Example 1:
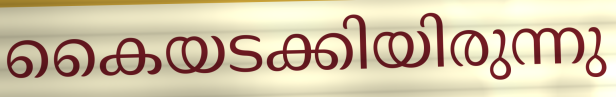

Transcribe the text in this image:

കൈയടക്കിയിരുന്നു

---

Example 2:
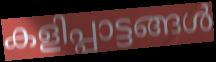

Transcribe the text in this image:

കളിപ്പാട്ടങ്ങൾ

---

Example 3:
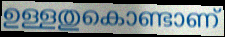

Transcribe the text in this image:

ഉള്ളതുകൊണ്ടാണ്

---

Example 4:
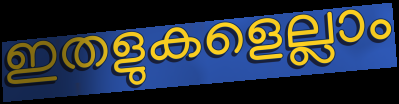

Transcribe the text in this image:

ഇതളുകളെല്ലാം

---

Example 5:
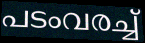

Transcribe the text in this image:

പടംവരച്ച്